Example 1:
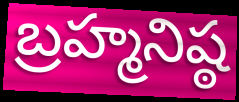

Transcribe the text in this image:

బ్రహ్మనిష్ఠ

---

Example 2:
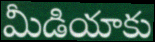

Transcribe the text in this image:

మీడియాకు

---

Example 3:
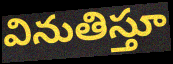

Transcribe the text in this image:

వినుతిస్తూ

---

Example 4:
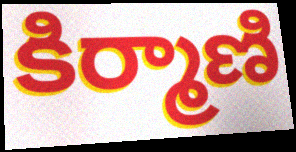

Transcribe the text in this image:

కిర్మాణి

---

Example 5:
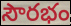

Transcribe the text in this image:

సౌరభం